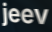
jeev